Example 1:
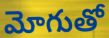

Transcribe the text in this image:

మోగుతో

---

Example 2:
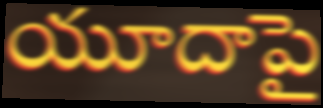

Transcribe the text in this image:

యూదాపై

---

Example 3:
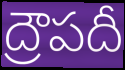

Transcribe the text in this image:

ద్రౌపదీ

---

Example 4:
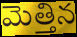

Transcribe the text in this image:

మెత్తిన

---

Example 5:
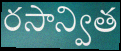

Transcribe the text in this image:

రసాన్విత